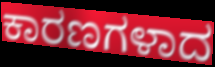
ಕಾರಣಗಳಾದ